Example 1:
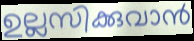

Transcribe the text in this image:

ഉല്ലസിക്കുവാൻ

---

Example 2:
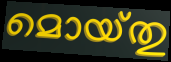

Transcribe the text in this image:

മൊയ്‌തു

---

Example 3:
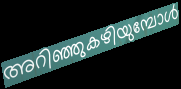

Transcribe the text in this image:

അറിഞ്ഞുകഴിയുമ്പോൾ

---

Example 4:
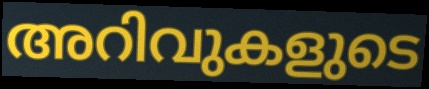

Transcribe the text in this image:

അറിവുകളുടെ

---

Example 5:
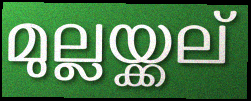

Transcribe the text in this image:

മുല്ലയ്ക്കല്